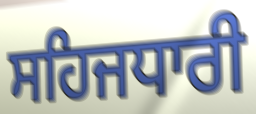
ਸਹਿਜਧਾਰੀ